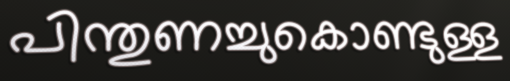
പിന്തുണച്ചുകൊണ്ടുള്ള